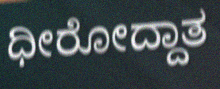
ಧೀರೋದ್ದಾತ